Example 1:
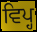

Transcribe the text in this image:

ਵਿਪ੍ਹ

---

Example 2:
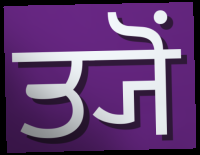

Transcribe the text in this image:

ਤ੍ਯੋਂ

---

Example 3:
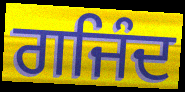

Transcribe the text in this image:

ਗਜਿੰਦ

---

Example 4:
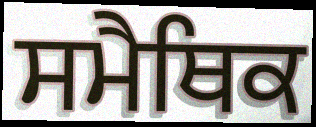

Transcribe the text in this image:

ਸਮੈਥਿਕ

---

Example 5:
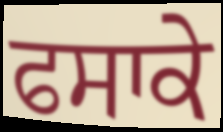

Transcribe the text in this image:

ਫਸਾਕੇ